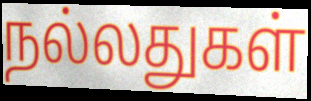
நல்லதுகள்